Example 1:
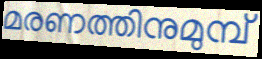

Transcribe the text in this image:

മരണത്തിനുമുമ്പ്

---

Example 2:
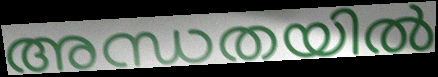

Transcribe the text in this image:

അന്ധതയിൽ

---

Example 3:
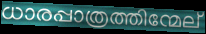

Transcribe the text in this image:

ധാരപ്പാത്രത്തിന്മേല്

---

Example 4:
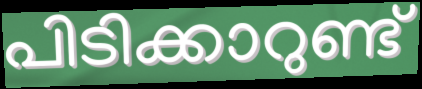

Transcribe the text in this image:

പിടിക്കാറുണ്ട്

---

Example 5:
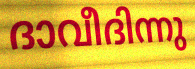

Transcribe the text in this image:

ദാവീദിന്നു